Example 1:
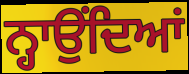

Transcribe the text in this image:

ਨ੍ਹਾਉਂਦਿਆਂ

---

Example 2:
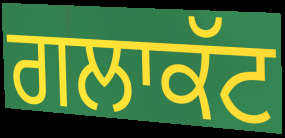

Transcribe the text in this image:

ਗਲਾਕੱਟ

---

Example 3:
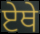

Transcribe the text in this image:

ਏਥੇ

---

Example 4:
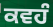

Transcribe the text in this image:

ਕਵਹੰ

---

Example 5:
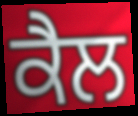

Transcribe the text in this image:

ਕੈਲ